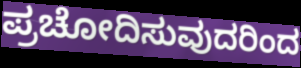
ಪ್ರಚೋದಿಸುವುದರಿಂದ